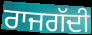
ਰਾਜਗੱਦੀ